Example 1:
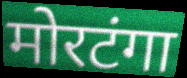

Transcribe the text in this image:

मोरटंगा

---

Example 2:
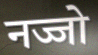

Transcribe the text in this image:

नज्जो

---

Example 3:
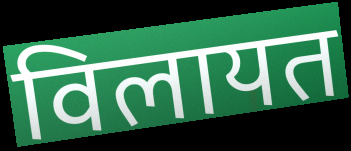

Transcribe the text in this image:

विलायत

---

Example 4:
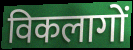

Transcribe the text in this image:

विकलागों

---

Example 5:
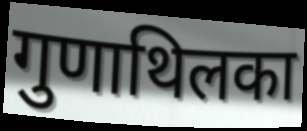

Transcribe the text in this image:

गुणाथिलका